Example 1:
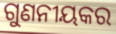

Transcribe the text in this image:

ଗୁଣନୀୟକର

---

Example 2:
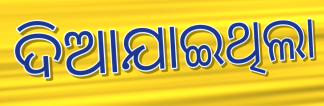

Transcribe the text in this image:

ଦିଆଯାଇଥିଲା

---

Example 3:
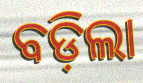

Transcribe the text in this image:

ବଡ଼ିଲା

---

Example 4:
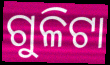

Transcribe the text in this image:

ଗୁଳିଟା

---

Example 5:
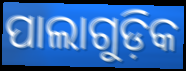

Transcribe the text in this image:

ପାଲାଗୁଡ଼ିକ